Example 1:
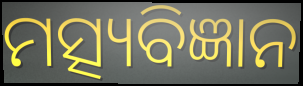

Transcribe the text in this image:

ମତ୍ସ୍ୟବିଜ୍ଞାନ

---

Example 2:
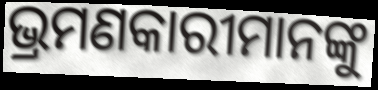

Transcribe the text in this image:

ଭ୍ରମଣକାରୀମାନଙ୍କୁ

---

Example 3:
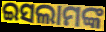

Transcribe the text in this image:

ଇସଲାମଙ୍କ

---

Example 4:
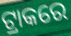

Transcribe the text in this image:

ଟ୍ରାକରେ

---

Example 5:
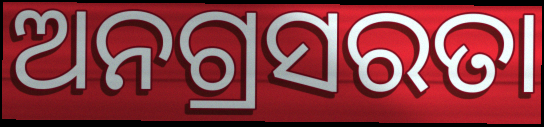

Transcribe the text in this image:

ଅନଗ୍ରସରତା